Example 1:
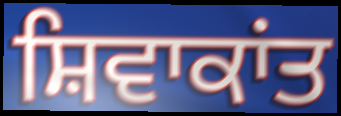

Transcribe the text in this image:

ਸ਼ਿਵਾਕਾਂਤ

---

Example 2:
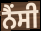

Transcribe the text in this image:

ਨੈਂਸੀ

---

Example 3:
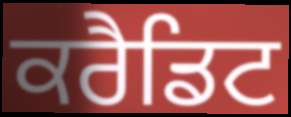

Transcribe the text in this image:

ਕਰੈਡਿਟ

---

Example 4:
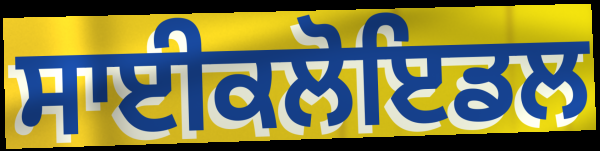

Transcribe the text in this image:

ਸਾਈਕਲੋਇਡਲ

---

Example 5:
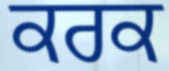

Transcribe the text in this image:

ਕਰਕ